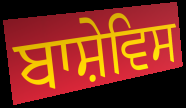
ਬਾਸ਼ੇਵਿਸ